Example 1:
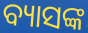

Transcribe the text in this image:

ବ୍ୟାସଙ୍କ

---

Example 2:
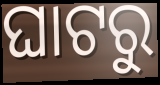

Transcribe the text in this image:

ଘାଟରୁ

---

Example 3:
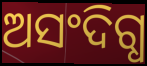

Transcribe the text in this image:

ଅସଂଦିଗ୍ଧ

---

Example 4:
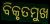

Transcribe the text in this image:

ବିକୃତମୁଖ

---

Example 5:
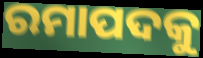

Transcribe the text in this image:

ରମାପଦକୁ